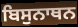
ਬਿਸੁਨਾਥਨ